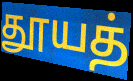
தூயத்